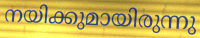
നയിക്കുമായിരുന്നു